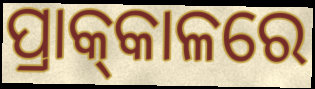
ପ୍ରାକ୍‍କାଳରେ